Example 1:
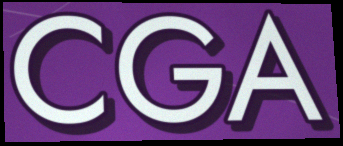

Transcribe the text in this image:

CGA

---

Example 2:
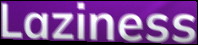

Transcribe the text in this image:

Laziness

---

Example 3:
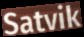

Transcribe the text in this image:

Satvik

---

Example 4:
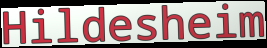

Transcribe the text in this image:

Hildesheim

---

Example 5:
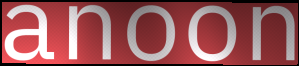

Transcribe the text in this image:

anoon